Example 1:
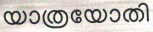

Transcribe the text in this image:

യാത്രയോതി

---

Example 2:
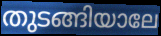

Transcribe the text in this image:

തുടങ്ങിയാലേ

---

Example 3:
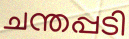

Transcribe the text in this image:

ചന്തപ്പടി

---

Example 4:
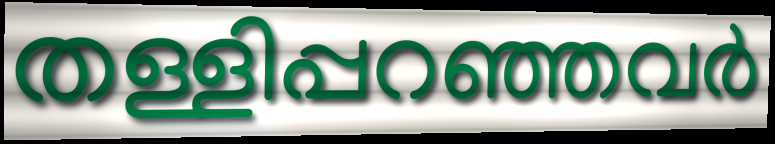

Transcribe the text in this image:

തള്ളിപ്പറഞ്ഞവർ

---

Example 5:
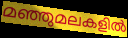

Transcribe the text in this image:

മഞ്ഞുമലകളിൽ